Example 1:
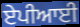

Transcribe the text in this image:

ਏਪੀਆਈ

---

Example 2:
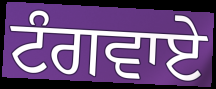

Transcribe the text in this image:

ਟੰਗਵਾਏ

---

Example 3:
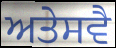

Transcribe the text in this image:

ਅਤੇਸਵੈ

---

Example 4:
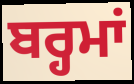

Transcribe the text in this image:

ਬਰ੍ਹਮਾਂ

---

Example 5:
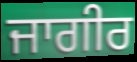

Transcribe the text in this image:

ਜਾਗੀਰ